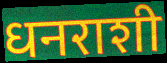
धनराशी